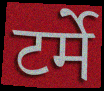
टर्मे